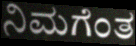
ನಿಮಗೆಂತ